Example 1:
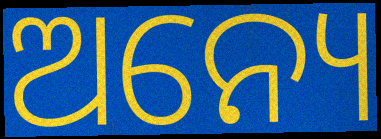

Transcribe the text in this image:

ଅନ୍ୟେ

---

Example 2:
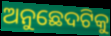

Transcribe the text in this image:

ଅନୁଛେଦଟିକୁ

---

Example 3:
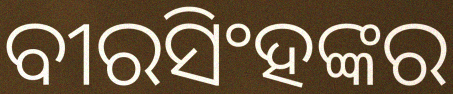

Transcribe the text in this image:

ବୀରସିଂହଙ୍କର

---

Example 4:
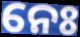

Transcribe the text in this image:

ନେଃ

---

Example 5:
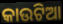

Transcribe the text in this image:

କାଉଟିଆ